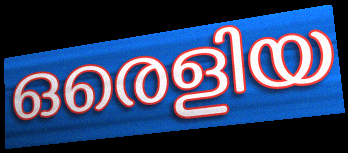
ഒരെളിയ